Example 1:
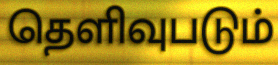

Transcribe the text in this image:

தெளிவுபடும்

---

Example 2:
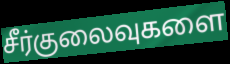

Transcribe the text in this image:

சீர்குலைவுகளை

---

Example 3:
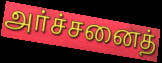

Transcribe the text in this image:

அர்ச்சனைத்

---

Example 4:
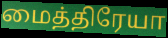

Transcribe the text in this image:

மைத்திரேயா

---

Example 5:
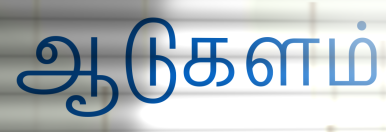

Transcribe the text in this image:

ஆடுகளம்